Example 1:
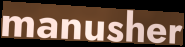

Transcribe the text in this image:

manusher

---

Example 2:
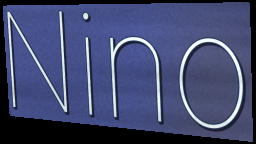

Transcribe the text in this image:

Nino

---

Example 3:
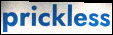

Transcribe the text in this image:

prickless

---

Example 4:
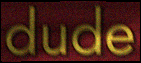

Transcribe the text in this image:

dude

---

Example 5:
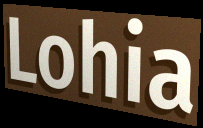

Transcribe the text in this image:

Lohia